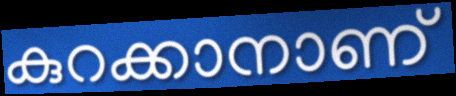
കുറക്കാനാണ്